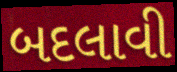
બદલાવી